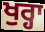
ਖੁਰ੍ਹਾ